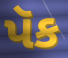
પૅક